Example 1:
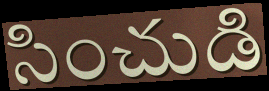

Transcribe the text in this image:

సించుడి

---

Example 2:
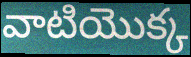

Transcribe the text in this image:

వాటియొక్క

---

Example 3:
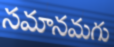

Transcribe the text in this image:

సమానమగు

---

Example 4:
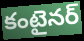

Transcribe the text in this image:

కంటైనర్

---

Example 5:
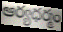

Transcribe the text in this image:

ఆర్యధర్మం